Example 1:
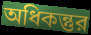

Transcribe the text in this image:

অধিকন্তুর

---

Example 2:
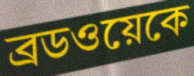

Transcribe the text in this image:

ব্রডওয়েকে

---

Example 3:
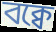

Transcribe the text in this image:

বক্বে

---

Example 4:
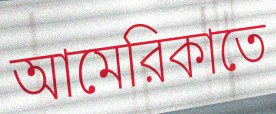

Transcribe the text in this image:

আমেরিকাতে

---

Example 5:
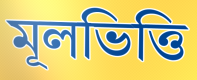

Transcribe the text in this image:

মূলভিত্তি